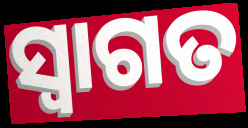
ସ୍ୱାଗତ